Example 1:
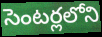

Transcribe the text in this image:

సెంటర్లలోని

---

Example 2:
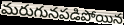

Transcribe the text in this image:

మరుగునపడిపోయిన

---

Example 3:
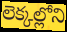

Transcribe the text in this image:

లెక్కల్లోని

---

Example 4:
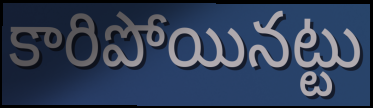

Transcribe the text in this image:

కారిపోయినట్టు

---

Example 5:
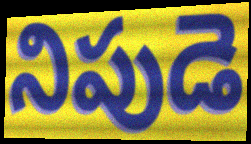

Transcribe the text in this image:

నిపుడె